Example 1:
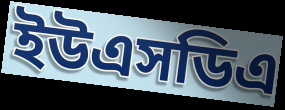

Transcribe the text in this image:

ইউএসডিএ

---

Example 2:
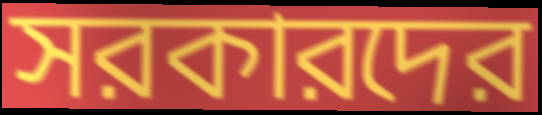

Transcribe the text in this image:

সরকারদের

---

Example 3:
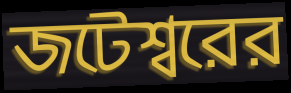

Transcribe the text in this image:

জটেশ্বরের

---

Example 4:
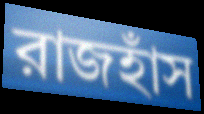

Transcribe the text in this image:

রাজহাঁস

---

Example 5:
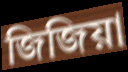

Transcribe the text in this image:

জিজিয়া